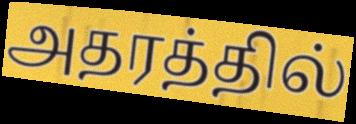
அதரத்தில்